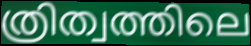
ത്രിത്വത്തിലെ